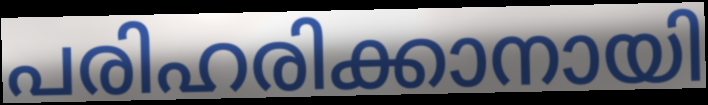
പരിഹരിക്കാനായി